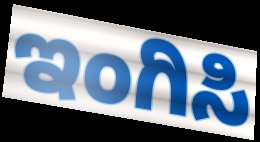
ಇಂಗಿಸಿ